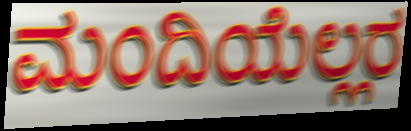
ಮಂದಿಯೆಲ್ಲರ